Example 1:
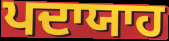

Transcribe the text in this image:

ਪਦਾਯਾਹ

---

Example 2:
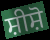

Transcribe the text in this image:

ਸ਼ੀਸ਼ੋ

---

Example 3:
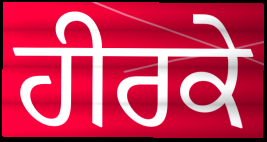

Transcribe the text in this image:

ਹੀਰਕੇ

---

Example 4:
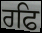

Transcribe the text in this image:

ਰਫਿ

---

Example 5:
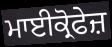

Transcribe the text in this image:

ਮਾਈਕ੍ਰੋਫੇਜ਼